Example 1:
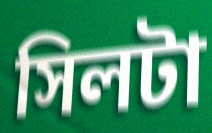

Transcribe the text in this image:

সিলটা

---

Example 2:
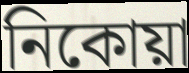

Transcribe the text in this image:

নিকোয়া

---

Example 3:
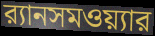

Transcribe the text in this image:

র‍্যানসমওয়্যার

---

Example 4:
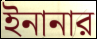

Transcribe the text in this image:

ইনানার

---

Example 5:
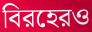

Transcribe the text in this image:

বিরহেরও